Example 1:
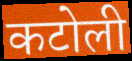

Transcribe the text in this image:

कटोली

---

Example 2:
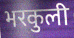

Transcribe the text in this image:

भरकुली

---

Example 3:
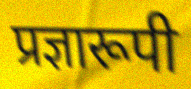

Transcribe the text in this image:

प्रज्ञारूपी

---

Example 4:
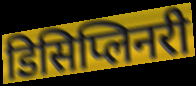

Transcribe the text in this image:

डिसिप्लिनरी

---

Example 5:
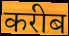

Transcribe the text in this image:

करीब